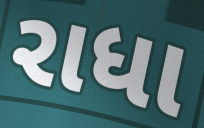
રાધા